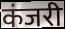
कंजरी